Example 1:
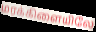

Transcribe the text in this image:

மரக்கிளையிலே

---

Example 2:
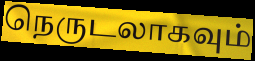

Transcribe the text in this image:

நெருடலாகவும்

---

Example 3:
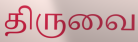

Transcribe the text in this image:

திருவை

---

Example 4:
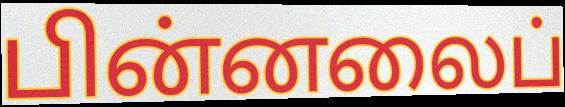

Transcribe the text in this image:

பின்னலைப்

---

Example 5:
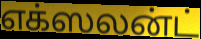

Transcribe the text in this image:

எக்ஸலன்ட்